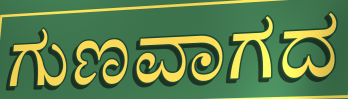
ಗುಣವಾಗದ